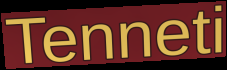
Tenneti